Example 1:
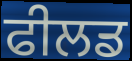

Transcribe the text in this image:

ਫੀਲਡ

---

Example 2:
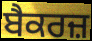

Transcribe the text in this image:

ਬੈਕਰਜ਼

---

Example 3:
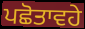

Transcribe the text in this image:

ਪਛੋਤਾਵਹੇ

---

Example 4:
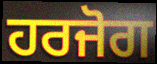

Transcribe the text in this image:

ਹਰਜੋਗ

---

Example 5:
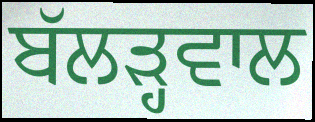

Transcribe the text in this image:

ਬੱਲੜ੍ਹਵਾਲ